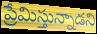
ప్రేమిస్తున్నాడని